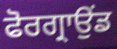
ਫੋਰਗ੍ਰਾਉਂਡ